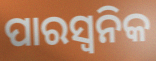
ପାରସ୍ୱନିକ